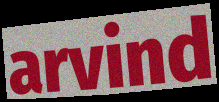
arvind